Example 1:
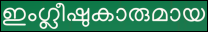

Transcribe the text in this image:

ഇംഗ്ലീഷുകാരുമായ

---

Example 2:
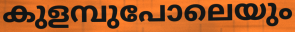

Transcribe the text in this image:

കുളമ്പുപോലെയും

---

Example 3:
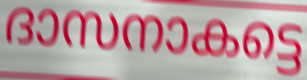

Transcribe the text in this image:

ദാസനാകട്ടെ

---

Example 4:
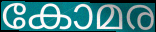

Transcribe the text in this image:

കോമര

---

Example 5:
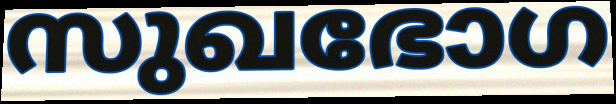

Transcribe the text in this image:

സുഖഭോഗ